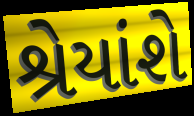
શ્રેયાંશે